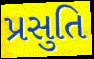
પ્રસુતિ